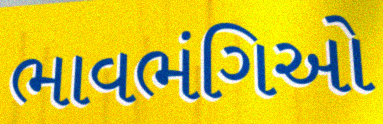
ભાવભંગિઓ